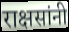
राक्षसांनी